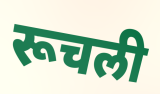
रूचली